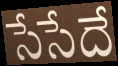
సేసేదే